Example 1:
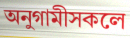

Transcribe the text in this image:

অনুগামীসকলে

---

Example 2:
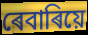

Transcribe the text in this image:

ৰেবাৰিয়ে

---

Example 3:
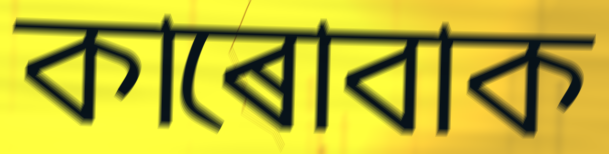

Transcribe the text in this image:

কাৰোবাক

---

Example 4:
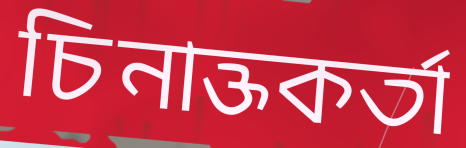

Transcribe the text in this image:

চিনাক্তকৰ্তা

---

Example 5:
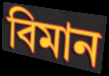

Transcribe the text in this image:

বিমান